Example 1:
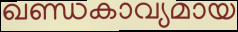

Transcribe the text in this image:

ഖണ്ഡകാവ്യമായ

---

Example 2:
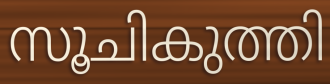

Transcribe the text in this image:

സൂചികുത്തി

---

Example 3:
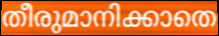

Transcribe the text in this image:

തീരുമാനിക്കാതെ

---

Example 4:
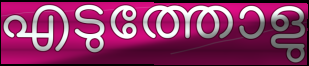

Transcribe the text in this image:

എടുത്തോളു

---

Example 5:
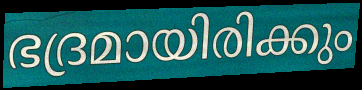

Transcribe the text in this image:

ഭദ്രമായിരിക്കും